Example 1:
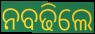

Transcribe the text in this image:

ନବଢିଲେ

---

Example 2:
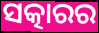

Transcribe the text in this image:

ସତ୍କାରର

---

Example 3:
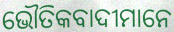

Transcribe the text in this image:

ଭୌତିକବାଦୀମାନେ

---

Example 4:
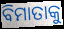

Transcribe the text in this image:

ବିମାତାକୁ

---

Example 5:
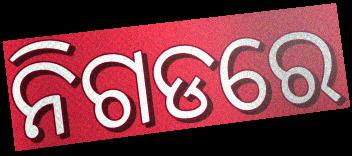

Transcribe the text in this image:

ନିଗଡରେ